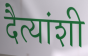
दैत्यांशी